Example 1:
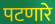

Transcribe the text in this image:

पटणारे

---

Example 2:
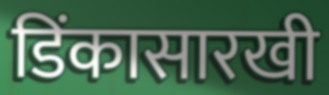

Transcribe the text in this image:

डिंकासारखी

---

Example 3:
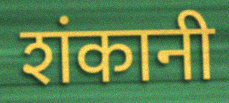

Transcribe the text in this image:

शंकानी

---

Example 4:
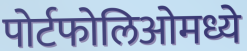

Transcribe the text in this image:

पोर्टफोलिओमध्ये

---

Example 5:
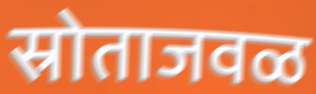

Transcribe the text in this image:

स्रोताजवळ